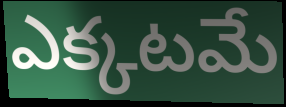
ఎక్కటమే